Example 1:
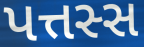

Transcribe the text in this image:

પત્તસ્સ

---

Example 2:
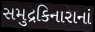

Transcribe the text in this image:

સમુદ્રકિનારાનાં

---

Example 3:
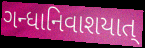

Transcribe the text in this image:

ગન્ધાનિવાશયાત્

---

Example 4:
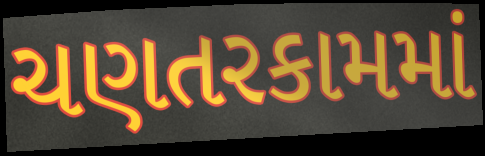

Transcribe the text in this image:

ચણતરકામમાં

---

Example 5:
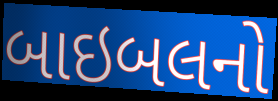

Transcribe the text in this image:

બાઇબલનો